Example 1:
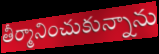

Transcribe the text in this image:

తీర్మానించుకున్నాను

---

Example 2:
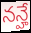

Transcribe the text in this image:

నన్హే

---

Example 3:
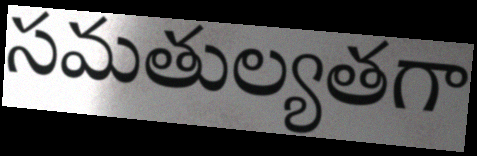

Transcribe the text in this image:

సమతుల్యతగా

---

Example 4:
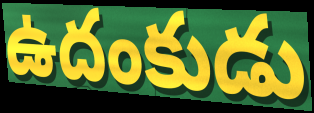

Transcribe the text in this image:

ఉదంకుడు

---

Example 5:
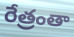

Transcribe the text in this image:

రేత్రంతా